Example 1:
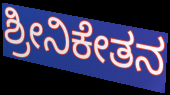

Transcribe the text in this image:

ಶ್ರೀನಿಕೇತನ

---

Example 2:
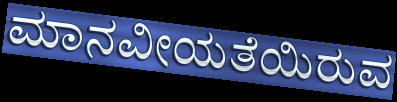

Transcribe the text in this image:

ಮಾನವೀಯತೆಯಿರುವ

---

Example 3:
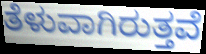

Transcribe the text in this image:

ತೆಳುವಾಗಿರುತ್ತವೆ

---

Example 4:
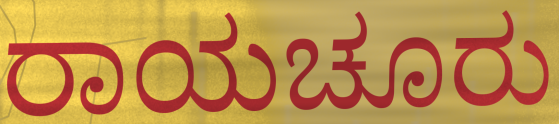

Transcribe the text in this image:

ರಾಯಚೂರು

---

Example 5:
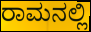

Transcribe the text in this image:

ರಾಮನಲ್ಲಿ